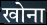
खोना